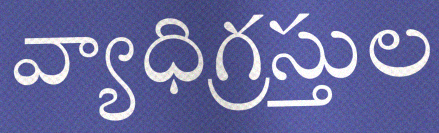
వ్యాధిగ్రస్తుల